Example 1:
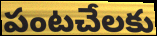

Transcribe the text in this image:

పంటచేలకు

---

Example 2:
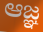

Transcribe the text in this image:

ఆజ్ఞ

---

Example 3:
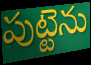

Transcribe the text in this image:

పుట్టెను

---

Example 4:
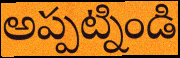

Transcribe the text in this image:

అప్పట్నిండి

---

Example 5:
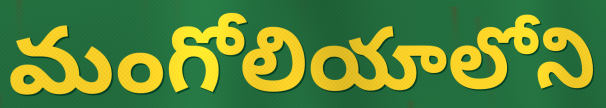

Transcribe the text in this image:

మంగోలియాలోని